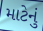
માટેનું